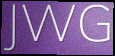
JWG